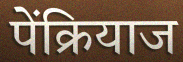
पेंक्रियाज